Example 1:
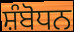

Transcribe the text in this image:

ਸ਼ੰਬੋਧਨ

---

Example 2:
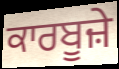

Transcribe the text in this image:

ਕਾਰਬੂਜ਼ੇ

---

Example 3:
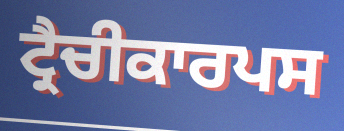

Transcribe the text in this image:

ਟ੍ਰੈਚੀਕਾਰਪਸ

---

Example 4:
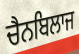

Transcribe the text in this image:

ਚੈਨਬਿਲਾਜ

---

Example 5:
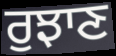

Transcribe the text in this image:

ਰੁਝਾਣ